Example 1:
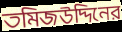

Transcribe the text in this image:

তমিজউদ্দিনের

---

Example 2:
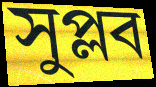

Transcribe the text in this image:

সুপ্লব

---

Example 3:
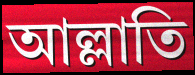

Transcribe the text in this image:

আল্লাতি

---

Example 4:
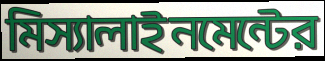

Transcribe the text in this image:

মিস্যালাইনমেন্টের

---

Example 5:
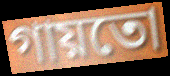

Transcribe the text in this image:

গায়তো